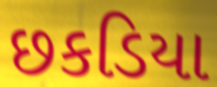
છકડિયા